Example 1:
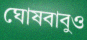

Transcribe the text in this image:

ঘোষবাবুও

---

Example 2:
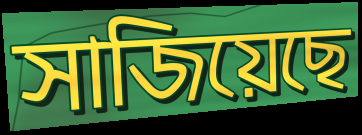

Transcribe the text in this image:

সাজিয়েছে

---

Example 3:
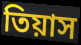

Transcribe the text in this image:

তিয়াস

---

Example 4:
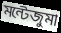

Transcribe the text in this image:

মন্টেজুমা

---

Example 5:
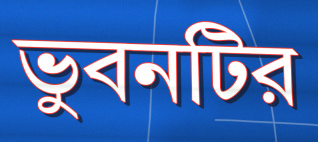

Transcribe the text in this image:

ভুবনটির